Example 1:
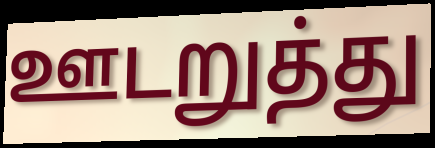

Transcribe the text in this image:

ஊடறுத்து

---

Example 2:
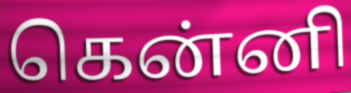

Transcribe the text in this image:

கென்னி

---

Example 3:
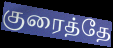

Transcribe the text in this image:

குரைத்தே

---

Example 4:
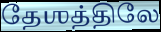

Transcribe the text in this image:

தேஶத்திலே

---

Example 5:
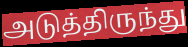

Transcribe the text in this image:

அடுத்திருந்து